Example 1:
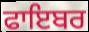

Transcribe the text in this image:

ਫਾਇਬਰ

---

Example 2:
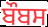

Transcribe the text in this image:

ਬੌਬਸ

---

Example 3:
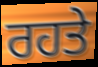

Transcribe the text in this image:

ਰਹਤੇ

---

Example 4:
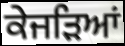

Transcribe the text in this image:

ਕੇਜੜਿਆਂ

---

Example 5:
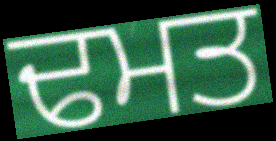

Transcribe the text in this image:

ਢਮਤ